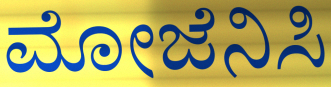
ಮೋಜೆನಿಸಿ